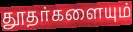
தூதர்களையும்